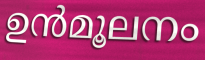
ഉൻമൂലനം